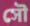
সৌ